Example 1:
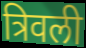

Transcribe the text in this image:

त्रिवली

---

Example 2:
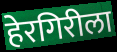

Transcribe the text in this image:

हेरगिरीला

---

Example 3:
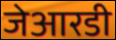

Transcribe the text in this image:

जेआरडी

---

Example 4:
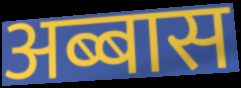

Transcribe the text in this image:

अब्बास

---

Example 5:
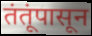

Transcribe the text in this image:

तंतूंपासून